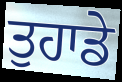
ਤੁਹਾਡੇ